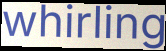
whirling